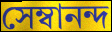
সেম্বানন্দ